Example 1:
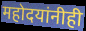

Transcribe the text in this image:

महोदयांनीही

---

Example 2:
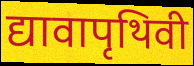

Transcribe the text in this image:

द्यावापृथिवी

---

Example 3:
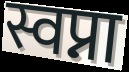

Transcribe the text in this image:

स्वप्ना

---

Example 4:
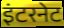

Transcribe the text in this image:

इंटरनेट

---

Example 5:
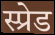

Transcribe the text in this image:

स्प्रेड